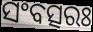
ସଂବତ୍ସରଃ